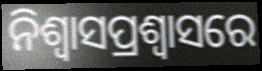
ନିଶ୍ୱାସପ୍ରଶ୍ୱାସରେ